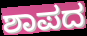
ಶಾಪದ